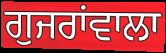
ਗੁਜਰਾਂਵਾਲਾ